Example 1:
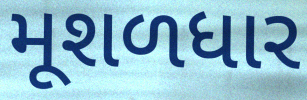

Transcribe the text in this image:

મૂશળધાર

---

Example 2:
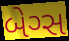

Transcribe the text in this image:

બેગ્સ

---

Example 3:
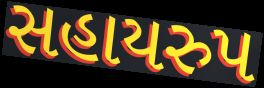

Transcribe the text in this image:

સહાયરુપ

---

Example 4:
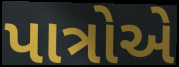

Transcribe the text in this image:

પાત્રોએ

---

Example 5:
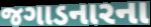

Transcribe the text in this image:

જગાડનારના